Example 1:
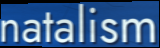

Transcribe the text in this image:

natalism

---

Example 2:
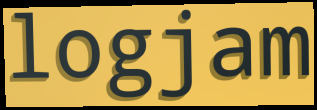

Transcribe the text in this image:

logjam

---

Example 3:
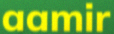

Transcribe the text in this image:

aamir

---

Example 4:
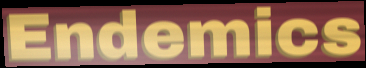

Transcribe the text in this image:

Endemics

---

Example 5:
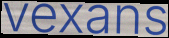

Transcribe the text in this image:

vexans